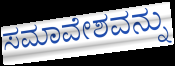
ಸಮಾವೇಶವನ್ನು